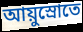
আয়ুস্রোতে